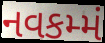
નવકમ્મં